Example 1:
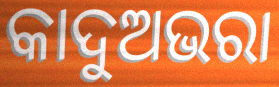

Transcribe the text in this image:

କାଦୁଅଭରା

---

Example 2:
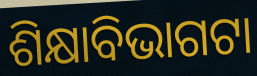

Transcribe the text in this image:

ଶିକ୍ଷାବିଭାଗଟା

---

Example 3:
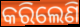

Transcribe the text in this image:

କରିଲେଣି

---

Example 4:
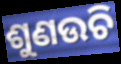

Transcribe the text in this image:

ଶୁଣଉଚି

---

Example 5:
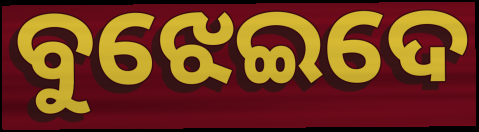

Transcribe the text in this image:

ବୁଝେଇଦେ